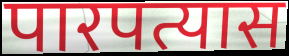
पारपत्यास